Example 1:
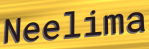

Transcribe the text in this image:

Neelima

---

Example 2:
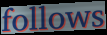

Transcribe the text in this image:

follows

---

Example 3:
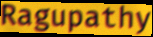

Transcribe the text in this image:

Ragupathy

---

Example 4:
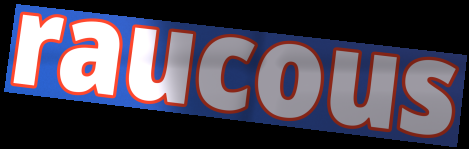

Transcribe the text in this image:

raucous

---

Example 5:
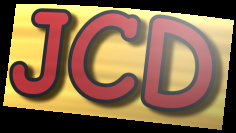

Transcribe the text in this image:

JCD